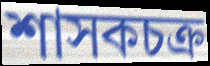
শাসকচক্র